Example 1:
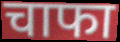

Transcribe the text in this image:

चाफा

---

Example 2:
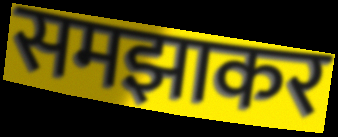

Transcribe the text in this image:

समझाकर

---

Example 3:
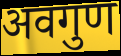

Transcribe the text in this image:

अवगुण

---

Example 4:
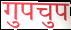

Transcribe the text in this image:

गुपचुप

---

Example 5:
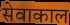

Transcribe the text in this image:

सेवाकाल